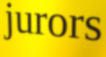
jurors